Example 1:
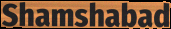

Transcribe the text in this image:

Shamshabad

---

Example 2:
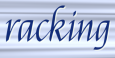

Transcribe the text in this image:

racking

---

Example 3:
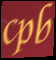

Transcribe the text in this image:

cpb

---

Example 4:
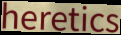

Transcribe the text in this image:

heretics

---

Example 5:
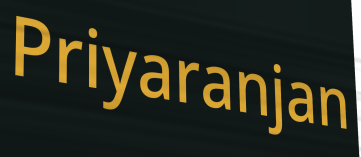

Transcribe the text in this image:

Priyaranjan